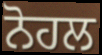
ਨੋਹਲ